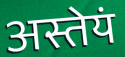
अस्तेयं